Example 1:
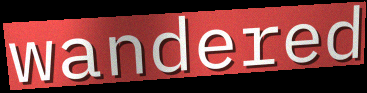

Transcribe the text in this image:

wandered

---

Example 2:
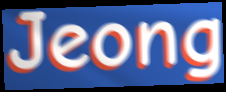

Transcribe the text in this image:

Jeong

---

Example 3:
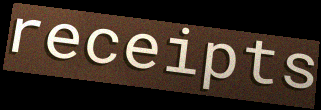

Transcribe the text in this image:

receipts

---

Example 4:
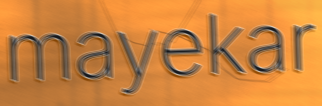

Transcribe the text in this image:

mayekar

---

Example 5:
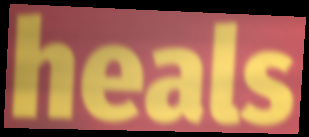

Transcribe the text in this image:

heals